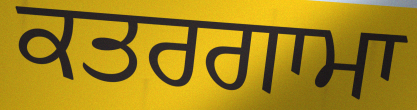
ਕਤਰਗਾਮਾ